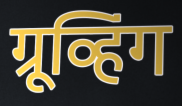
ग्रूव्हिंग